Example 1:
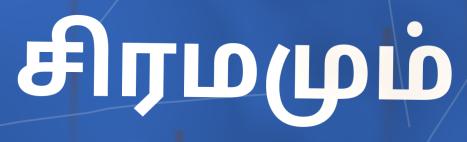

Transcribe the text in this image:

சிரமமும்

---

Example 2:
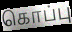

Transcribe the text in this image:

கொப்பு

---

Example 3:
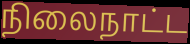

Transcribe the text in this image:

நிலைநாட்ட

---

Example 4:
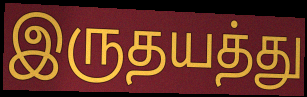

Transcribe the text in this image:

இருதயத்து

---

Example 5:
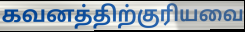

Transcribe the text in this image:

கவனத்திற்குரியவை